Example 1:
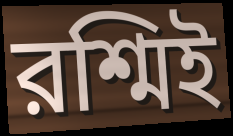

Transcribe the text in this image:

রশ্মিই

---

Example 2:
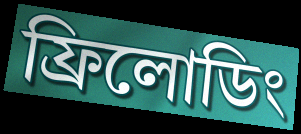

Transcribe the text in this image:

ফ্রিলোডিং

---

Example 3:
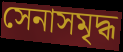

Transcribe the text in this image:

সেনাসমৃদ্ধ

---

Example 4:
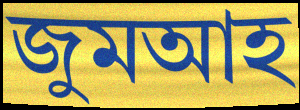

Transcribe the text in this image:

জুমআহ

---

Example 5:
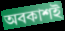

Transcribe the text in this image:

অবকাশই